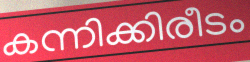
കന്നിക്കിരീടം